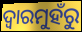
ଦ୍ଵାରମୁହଁରୁ